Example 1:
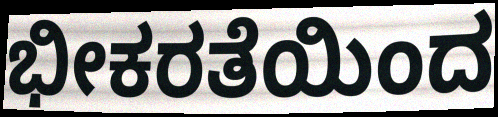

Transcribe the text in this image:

ಭೀಕರತೆಯಿಂದ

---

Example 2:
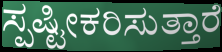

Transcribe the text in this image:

ಸ್ಪಷ್ಟೀಕರಿಸುತ್ತಾರೆ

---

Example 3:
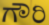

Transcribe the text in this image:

ಗೌರಿ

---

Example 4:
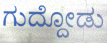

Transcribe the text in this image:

ಗುದ್ದೋಡು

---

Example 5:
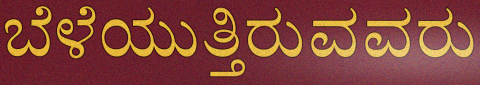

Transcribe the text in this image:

ಬೆಳೆಯುತ್ತಿರುವವರು